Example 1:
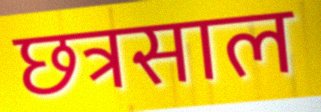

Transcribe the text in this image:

छत्रसाल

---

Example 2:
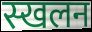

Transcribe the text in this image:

स्‍खलन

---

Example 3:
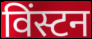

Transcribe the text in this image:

विंस्टन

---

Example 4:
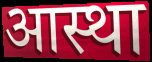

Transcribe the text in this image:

आस्‍था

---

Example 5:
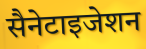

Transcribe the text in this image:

सैनेटाइजेशन